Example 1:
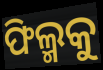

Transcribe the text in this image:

ଫିଲ୍ମକୁ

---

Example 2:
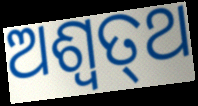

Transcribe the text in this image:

ଅଶ୍ଵତ୍‌ଥ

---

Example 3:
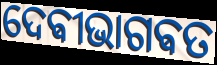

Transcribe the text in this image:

ଦେଵୀଭାଗଵତ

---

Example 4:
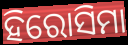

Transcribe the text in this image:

ହିରୋସିମା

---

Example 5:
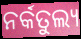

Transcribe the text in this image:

ନର୍କତୁଲ୍ୟ